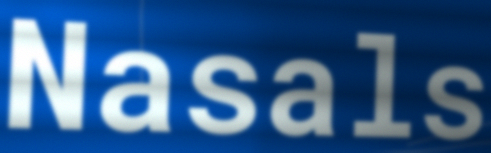
Nasals